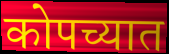
कोपच्यात